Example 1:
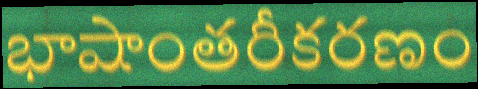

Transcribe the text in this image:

భాషాంతరీకరణం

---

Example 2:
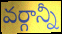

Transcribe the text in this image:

వర్గాన్నీ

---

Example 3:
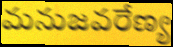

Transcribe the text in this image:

మనుజవరేణ్య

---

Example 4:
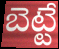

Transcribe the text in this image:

బెట్టే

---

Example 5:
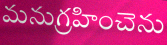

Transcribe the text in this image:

మనుగ్రహించెను